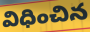
విధించిన